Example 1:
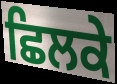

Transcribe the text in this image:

ਛਿਲਕੇ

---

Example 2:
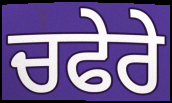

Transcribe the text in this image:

ਚਫੇਰੇ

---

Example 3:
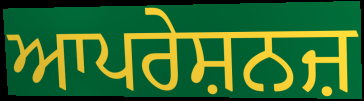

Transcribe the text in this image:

ਆਪਰੇਸ਼ਨਜ਼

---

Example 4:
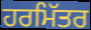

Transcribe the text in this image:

ਹਰਮਿੱਤਰ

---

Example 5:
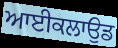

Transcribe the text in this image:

ਆਈਕਲਾਉਡ